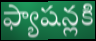
ఫ్యాషన్లకి